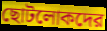
ছোটলোকদের